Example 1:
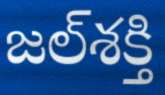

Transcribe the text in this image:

జల్‌శక్తి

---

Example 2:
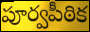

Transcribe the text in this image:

పూర్వపీఠిక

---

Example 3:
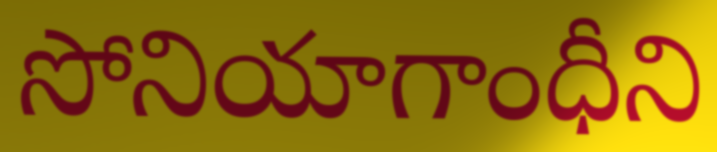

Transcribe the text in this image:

సోనియాగాంధీని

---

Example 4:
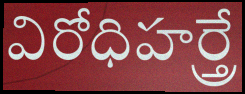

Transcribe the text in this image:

విరోధిహర్త్రే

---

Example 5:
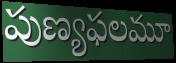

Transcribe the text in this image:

పుణ్యఫలమూ